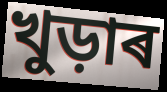
খুড়াৰ